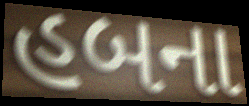
હબના